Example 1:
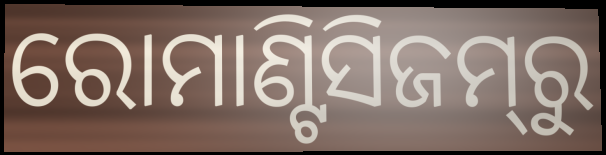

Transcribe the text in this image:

ରୋମାଣ୍ଟିସିଜମ୍‌ରୁ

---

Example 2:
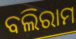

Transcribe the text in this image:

ବଲିରାମ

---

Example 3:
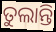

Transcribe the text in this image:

ତୁଲାନ୍ତି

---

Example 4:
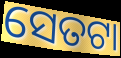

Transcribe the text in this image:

ସେତଟା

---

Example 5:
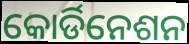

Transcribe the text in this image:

କୋର୍ଡିନେଶନ